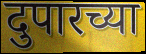
दुपारच्या